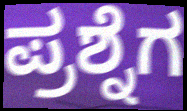
ಪ್ರಶ್ನೆಗ